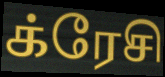
க்ரேசி